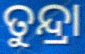
ତୁନ୍ଦ୍ରା